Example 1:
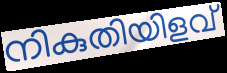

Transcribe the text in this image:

നികുതിയിളവ്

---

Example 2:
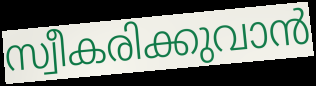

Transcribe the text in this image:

സ്വീകരിക്കുവാൻ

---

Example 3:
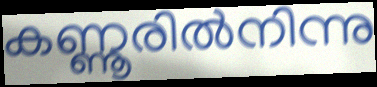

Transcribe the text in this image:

കണ്ണൂരിൽനിന്നു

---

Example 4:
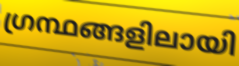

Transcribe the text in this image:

ഗ്രന്ഥങ്ങളിലായി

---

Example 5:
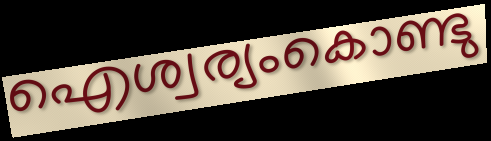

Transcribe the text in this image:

ഐശ്വര്യംകൊണ്ടു